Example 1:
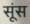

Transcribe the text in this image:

सूंस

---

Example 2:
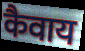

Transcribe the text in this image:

कैवाय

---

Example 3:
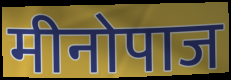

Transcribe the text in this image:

मीनोपाज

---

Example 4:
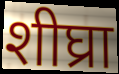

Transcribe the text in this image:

शीघ्रा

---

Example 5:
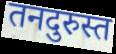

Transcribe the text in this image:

तनदुरुस्त